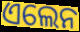
ଏଲେନ